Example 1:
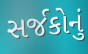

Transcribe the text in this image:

સર્જકોનું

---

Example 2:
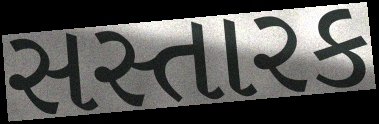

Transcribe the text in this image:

સસ્તારક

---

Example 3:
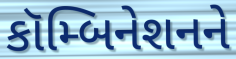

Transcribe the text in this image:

કૉમ્બિનેશનને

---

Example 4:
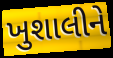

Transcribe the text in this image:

ખુશાલીને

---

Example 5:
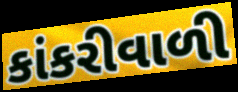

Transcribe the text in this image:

કાંકરીવાળી